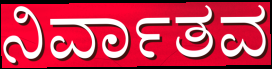
ನಿರ್ವಾತವ